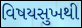
વિષયસુખથી